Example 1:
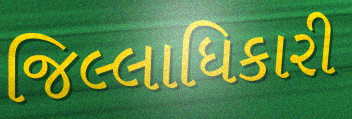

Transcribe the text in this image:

જિલ્લાધિકારી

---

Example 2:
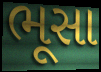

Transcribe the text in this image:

ભૂસા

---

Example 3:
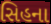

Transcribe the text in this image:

સિહના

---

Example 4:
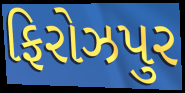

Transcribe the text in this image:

ફિરોઝપુર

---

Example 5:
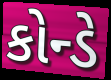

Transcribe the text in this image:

કોન્ડે